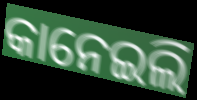
କାନେଇଲି